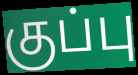
குப்பு